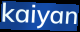
kaiyan